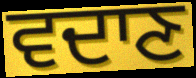
ਵਦਾਣ